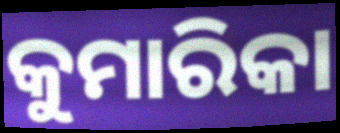
କୁମାରିକା